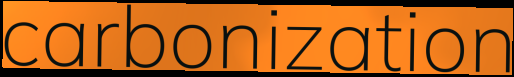
carbonization